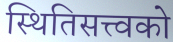
स्थितिसत्त्वको